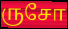
ருசோ